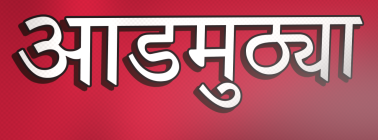
आडमुठ्या